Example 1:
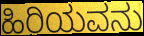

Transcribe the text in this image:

ಹಿರಿಯವನು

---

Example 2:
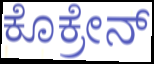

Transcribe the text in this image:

ಕೊಕ್ರೇನ್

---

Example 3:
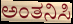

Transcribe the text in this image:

ಅಂತನಿಸಿ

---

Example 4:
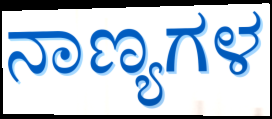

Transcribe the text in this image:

ನಾಣ್ಯಗಳ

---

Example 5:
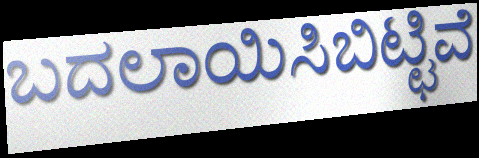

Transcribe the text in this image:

ಬದಲಾಯಿಸಿಬಿಟ್ಟಿವೆ